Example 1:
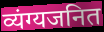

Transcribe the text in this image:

व्यंग्यजनित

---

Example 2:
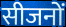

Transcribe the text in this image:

सीजनों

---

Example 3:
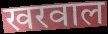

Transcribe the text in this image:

खरवाल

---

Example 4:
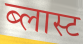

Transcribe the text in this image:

ब्लास्ट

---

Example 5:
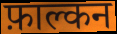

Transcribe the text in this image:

फ़ाल्कन